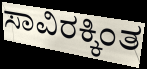
ಸಾವಿರಕ್ಕಿಂತ